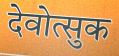
देवोत्सुक